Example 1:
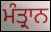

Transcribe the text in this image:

ਮੰਤ੍ਰਾਨ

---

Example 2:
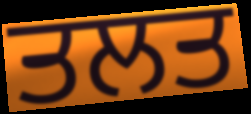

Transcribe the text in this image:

ਤਲਤ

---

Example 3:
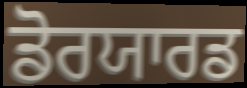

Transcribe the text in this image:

ਡੋਰਯਾਰਡ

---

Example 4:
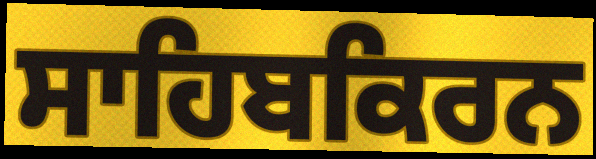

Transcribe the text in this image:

ਸਾਹਿਬਕਿਰਨ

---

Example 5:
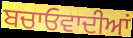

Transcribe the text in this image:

ਬਚਾਓਵਾਦੀਆਂ